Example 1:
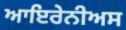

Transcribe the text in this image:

ਆਇਰੇਨੀਅਸ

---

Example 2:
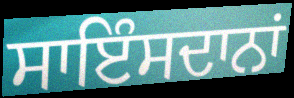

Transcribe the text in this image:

ਸਾਇੰਸਦਾਨਾਂ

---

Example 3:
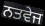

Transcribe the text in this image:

ਨਤਵੇਜ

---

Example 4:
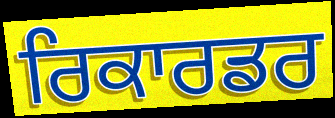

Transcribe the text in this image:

ਰਿਕਾਰਡਰ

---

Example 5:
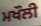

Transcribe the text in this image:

ਮਖੌਲੀ